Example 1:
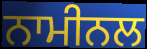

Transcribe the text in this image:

ਨਾਮੀਨਲ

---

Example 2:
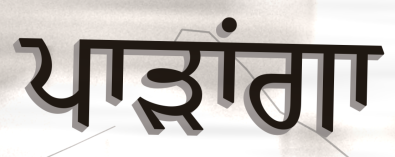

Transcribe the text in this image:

ਪਾੜਾਂਗਾ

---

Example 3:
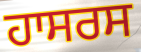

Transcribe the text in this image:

ਹਾਸਰਸ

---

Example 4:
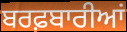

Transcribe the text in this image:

ਬਰਫ਼ਬਾਰੀਆਂ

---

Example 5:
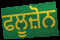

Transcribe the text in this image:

ਫਲੂਜ਼ੋਨ